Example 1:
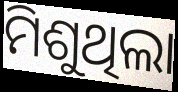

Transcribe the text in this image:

ମିଶୁଥିଲା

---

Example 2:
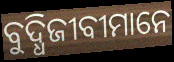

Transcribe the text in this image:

ବୁଦ୍ଧିଜୀବୀମାନେ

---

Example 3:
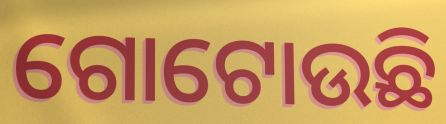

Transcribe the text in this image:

ଗୋଟୋଉଛି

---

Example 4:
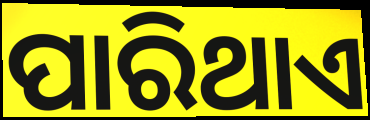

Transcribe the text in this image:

ପାରିଥାଏ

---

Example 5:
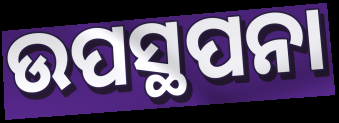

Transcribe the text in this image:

ଉପସ୍ଥପନା